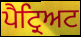
ਪੈਟ੍ਰਿਅਟ